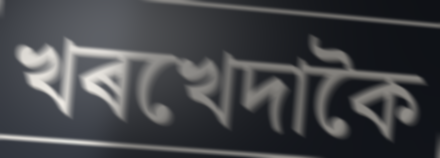
খৰখেদাকৈ